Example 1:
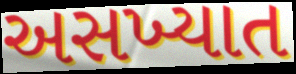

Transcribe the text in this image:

અસખ્યાત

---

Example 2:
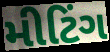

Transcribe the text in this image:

મીટિંગ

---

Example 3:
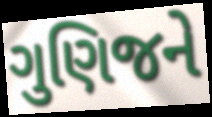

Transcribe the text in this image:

ગુણિજને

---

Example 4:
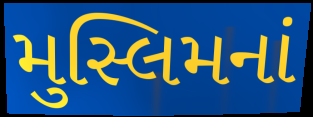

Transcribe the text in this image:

મુસ્લિમનાં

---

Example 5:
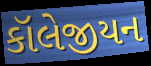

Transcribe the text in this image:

કૉલેજીયન